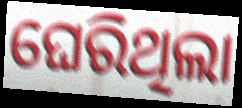
ଘେରିଥିଲା